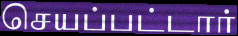
செயப்பட்டார்